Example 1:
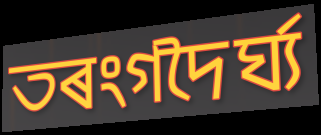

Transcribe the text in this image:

তৰংগদৈৰ্ঘ্য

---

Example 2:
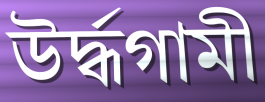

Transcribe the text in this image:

উৰ্দ্ধগামী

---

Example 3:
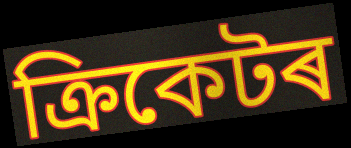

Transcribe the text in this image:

ক্ৰিকেটৰ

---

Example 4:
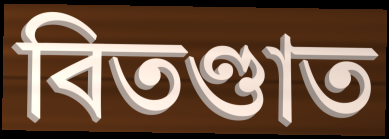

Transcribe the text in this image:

বিতণ্ডাত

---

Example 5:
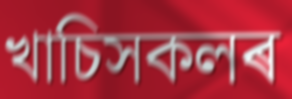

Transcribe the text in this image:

খাচিসকলৰ